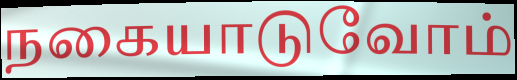
நகையாடுவோம்